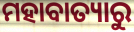
ମହାବାତ୍ୟାରୁ